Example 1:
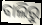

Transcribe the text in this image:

ବାଲିରୁ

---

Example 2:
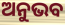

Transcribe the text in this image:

ଅନୁଭବ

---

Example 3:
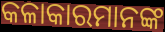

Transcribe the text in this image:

କଳାକାରମାନଙ୍କ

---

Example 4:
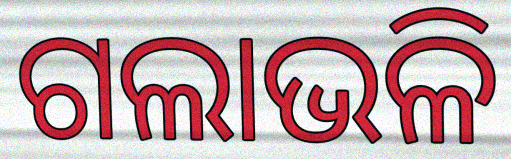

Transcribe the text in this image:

ଗଲାଭଳି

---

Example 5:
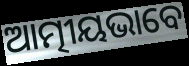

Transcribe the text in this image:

ଆତ୍ମୀୟଭାବେ